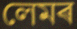
লেমৰ